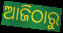
ଆଜିଠାରୁ